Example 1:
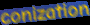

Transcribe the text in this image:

conization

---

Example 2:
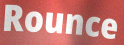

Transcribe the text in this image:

Rounce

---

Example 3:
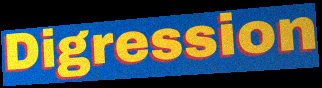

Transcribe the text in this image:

Digression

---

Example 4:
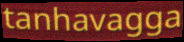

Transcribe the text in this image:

tanhavagga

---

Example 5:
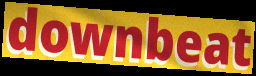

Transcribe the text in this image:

downbeat